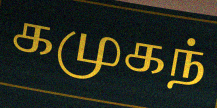
கமுகந்